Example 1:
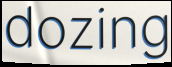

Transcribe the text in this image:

dozing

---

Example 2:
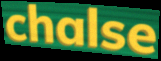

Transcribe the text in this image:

chalse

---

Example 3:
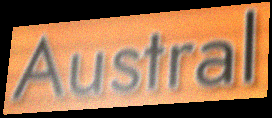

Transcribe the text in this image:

Austral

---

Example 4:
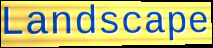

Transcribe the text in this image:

Landscape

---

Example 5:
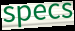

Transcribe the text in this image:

specs